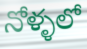
నోళ్ళలో